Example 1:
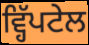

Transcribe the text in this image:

ਵ੍ਹਿੱਪਟੇਲ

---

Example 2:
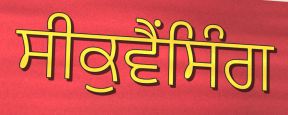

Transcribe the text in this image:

ਸੀਕੁਵੈਂਸਿੰਗ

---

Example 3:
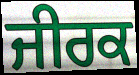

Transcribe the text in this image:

ਜੀਰਕ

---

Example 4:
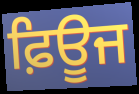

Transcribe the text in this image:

ਫ਼ਿਊਜ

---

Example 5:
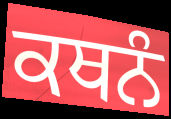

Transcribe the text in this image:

ਕਥਨੰ